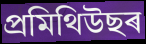
প্ৰমিথিউছৰ